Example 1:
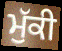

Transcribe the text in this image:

ਮੁੱਕੀ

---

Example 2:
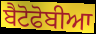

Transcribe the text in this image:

ਬੈਟੋਫੋਬੀਆ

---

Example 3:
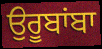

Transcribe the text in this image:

ਉਰੂਬਾਂਬਾ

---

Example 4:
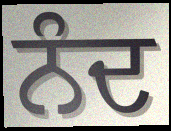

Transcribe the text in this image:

ਨੰਦ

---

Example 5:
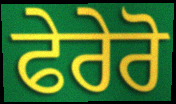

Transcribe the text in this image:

ਫੇਰੇਰੋ